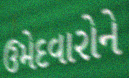
ઉમેદવારોને